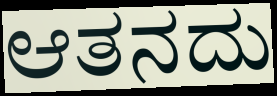
ಆತನದು